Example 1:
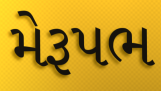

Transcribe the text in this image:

મેરૂપભ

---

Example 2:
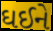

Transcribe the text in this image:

ઘઈને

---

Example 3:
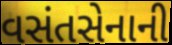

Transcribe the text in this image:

વસંતસેનાની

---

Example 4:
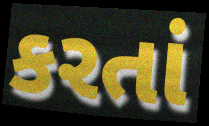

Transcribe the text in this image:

કરતાં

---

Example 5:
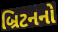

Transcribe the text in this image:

બ્રિટનનો